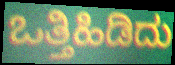
ಒತ್ತಿಹಿಡಿದು